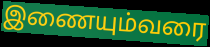
இணையும்வரை